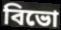
বিভো